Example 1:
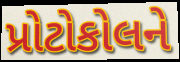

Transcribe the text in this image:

પ્રોટોકોલને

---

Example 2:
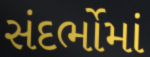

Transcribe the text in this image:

સંદર્ભોમાં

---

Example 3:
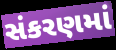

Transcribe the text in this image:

સંકરણમાં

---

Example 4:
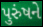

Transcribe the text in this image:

પુરુંષને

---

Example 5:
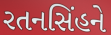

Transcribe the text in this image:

રતનસિંહને